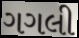
ગગલી